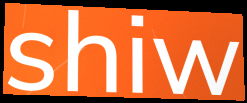
shiw